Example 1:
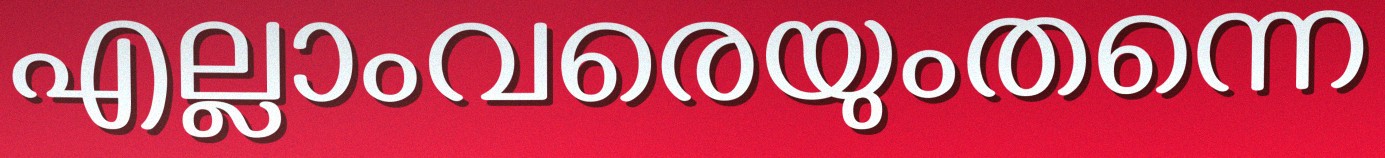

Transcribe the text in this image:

എല്ലാംവരെയുംതന്നെ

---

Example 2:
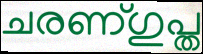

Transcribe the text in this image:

ചരണ്ഗുപ്ത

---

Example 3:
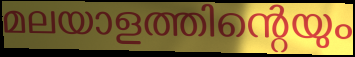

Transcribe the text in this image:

മലയാളത്തിന്റെയും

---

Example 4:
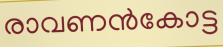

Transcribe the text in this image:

രാവണൻകോട്ട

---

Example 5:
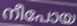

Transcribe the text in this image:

നീപോയ